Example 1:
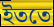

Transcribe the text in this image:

ইততে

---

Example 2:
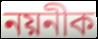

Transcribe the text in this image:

নয়নীক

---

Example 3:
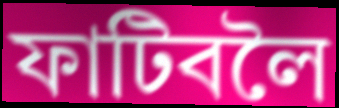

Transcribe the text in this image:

ফাটিবলৈ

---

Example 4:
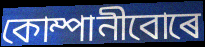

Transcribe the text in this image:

কোম্পানীবোৰে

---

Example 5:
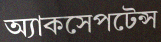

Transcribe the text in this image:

অ্যাকসেপটেন্স